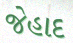
જેહાદ